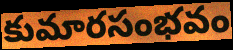
కుమారసంభవం